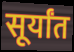
सूर्यांत